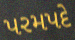
પરમપદે